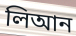
লিআন